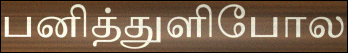
பனித்துளிபோல